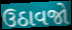
ઉઠાવજો